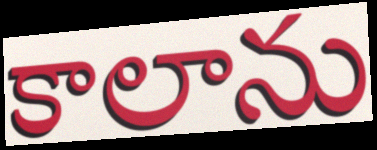
కాలాను